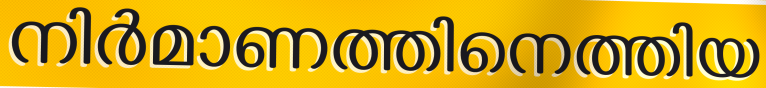
നിർമാണത്തിനെത്തിയ